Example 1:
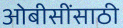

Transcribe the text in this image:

ओबीसींसाठी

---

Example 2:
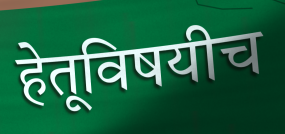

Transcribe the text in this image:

हेतूविषयीच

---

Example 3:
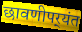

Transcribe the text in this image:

छावणीपर्यंत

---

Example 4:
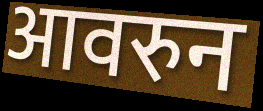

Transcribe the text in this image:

आवरुन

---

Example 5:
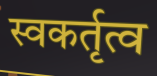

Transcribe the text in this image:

स्वकर्तृत्व